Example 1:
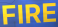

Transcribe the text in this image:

FIRE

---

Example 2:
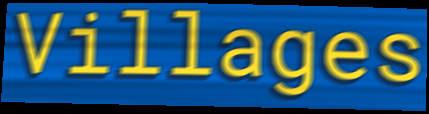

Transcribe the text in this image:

Villages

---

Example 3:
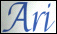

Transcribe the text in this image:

Ari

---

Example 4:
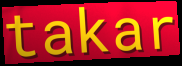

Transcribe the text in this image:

takar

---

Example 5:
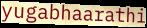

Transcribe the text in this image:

yugabhaarathi